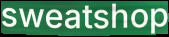
sweatshop